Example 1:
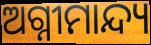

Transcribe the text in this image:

ଅଗ୍ନୀମାନ୍ଦ୍ୟ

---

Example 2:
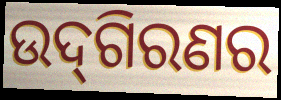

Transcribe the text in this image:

ଉଦ୍‌ଗିରଣର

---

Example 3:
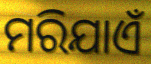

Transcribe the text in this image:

ମରିଯାଏଁ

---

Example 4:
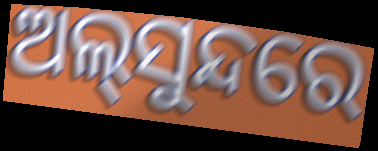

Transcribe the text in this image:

ଅଲ୍‌ସୁନ୍ଦରେ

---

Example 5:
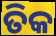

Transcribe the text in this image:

ତିକ